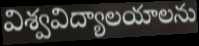
విశ్వవిద్యాలయాలను